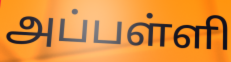
அப்பள்ளி